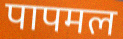
पापमल